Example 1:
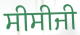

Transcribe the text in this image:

ਸੀਸੀਜੀ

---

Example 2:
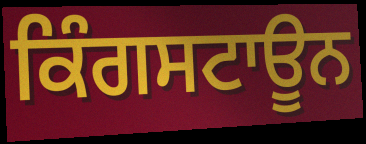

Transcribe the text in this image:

ਕਿੰਗਸਟਾਊਨ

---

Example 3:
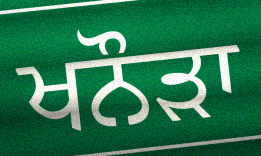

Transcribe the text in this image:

ਖਨੌੜਾ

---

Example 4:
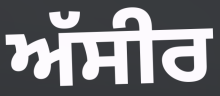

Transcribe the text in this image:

ਅੱਸੀਰ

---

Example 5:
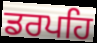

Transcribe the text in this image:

ਡਰਪਹਿ